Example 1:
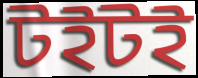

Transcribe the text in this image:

টইটই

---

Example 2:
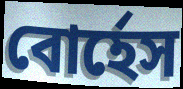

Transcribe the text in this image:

বোর্হেস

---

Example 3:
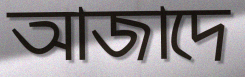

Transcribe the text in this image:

আজাদে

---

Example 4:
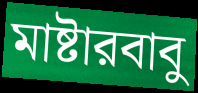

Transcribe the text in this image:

মাষ্টারবাবু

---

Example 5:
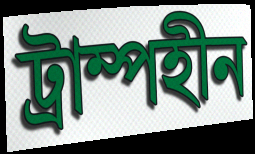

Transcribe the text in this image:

ট্রাম্পহীন